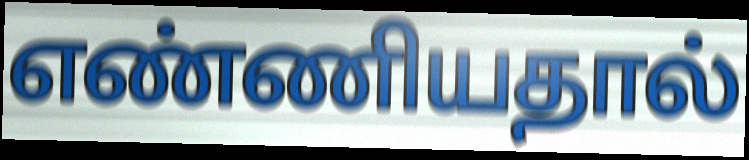
எண்ணியதால்